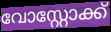
വോസ്റ്റോക്ക്